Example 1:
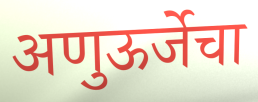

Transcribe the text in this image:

अणुऊर्जेचा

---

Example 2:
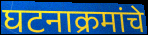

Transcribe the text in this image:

घटनाक्रमांचे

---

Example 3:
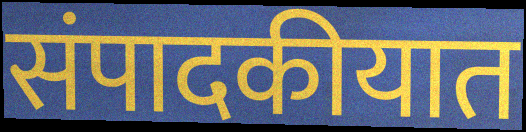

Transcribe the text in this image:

संपादकीयात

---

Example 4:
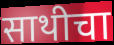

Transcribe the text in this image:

साथीचा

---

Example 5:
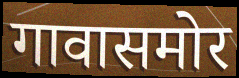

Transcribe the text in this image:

गावासमोर